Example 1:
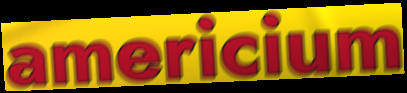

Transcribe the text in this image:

americium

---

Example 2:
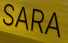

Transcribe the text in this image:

SARA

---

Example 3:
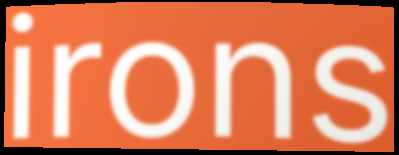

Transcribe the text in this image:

irons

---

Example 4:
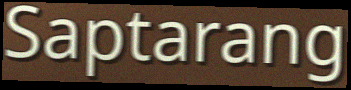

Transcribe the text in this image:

Saptarang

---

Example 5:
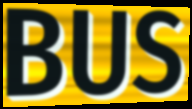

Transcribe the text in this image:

BUS